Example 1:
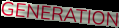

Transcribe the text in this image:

GENERATION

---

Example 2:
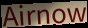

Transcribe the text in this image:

Airnow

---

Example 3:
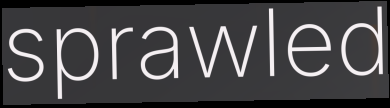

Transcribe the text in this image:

sprawled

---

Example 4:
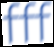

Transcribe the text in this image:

fff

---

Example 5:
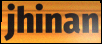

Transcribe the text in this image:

jhinan